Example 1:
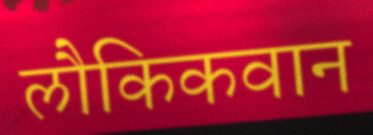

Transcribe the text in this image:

लौकिकवान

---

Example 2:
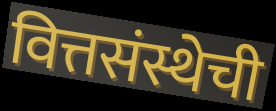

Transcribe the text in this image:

वित्तसंस्थेची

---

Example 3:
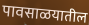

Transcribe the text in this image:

पावसाळयातील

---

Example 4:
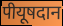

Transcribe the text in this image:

पीयूषदान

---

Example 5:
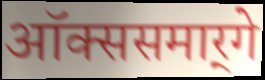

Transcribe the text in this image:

ऑक्ससमार्गे